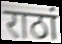
राठां